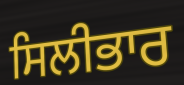
ਸਿਲੀਭਾਰ